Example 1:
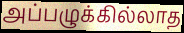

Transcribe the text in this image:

அப்பழுக்கில்லாத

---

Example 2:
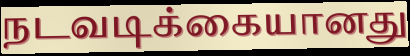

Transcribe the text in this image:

நடவடிக்கையானது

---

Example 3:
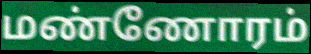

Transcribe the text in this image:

மண்ணோரம்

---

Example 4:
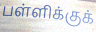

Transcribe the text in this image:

பள்ளிக்குக்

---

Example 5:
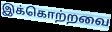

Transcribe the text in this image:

இக்கொற்றவை